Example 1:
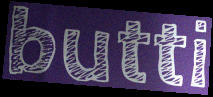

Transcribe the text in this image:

butti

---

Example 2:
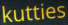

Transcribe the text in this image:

kutties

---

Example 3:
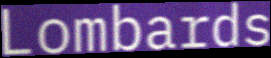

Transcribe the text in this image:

Lombards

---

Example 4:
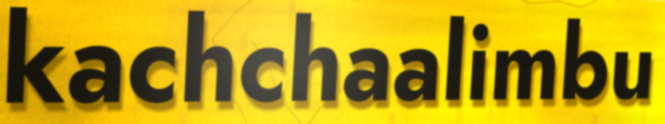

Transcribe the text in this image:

kachchaalimbu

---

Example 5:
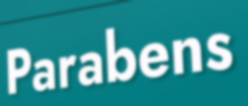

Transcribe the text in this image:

Parabens